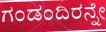
ಗಂಡಂದಿರನ್ನೇ